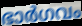
ഭാർഗവം